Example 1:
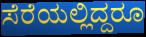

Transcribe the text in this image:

ಸೆರೆಯಲ್ಲಿದ್ದರೂ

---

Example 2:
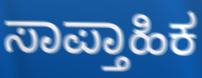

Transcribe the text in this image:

ಸಾಪ್ತಾಹಿಕ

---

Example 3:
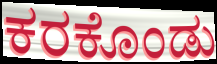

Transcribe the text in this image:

ಕರಕೊಂಡು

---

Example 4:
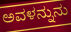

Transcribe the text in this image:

ಅವಳನ್ನುನು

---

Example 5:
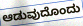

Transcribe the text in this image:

ಆಡುವುದೊಂದು